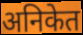
अनिकेत